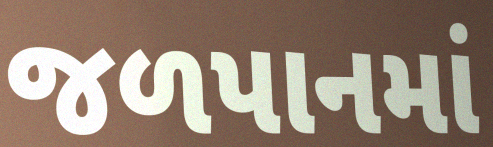
જળપાનમાં